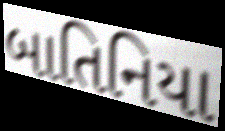
બાતિનિયા